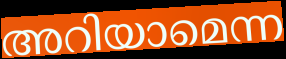
അറിയാമെന്ന